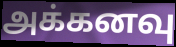
அக்கனவு